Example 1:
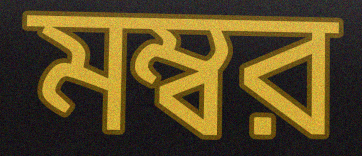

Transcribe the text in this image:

মম্বর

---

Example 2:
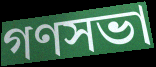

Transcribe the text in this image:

গণসভা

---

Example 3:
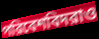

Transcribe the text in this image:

পরিবেশবিদরাও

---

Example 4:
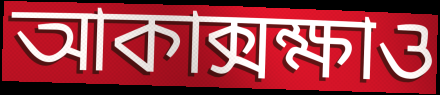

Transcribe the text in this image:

আকাক্সক্ষাও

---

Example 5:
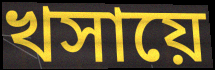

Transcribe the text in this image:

খসায়ে